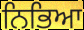
ਨਿਭਿਆ